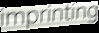
imprinting